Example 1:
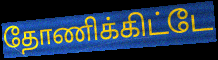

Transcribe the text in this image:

தோணிக்கிட்டே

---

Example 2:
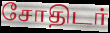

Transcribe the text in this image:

சோதிடர்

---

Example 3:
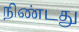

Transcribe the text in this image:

நிண்டது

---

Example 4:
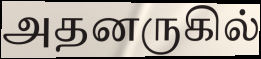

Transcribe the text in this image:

அதனருகில்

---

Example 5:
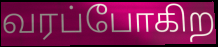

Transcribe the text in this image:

வரப்போகிற